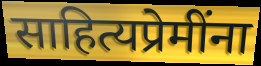
साहित्यप्रेमींना